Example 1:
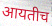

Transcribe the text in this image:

आयतीच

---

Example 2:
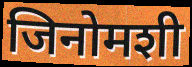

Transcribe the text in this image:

जिनोमशी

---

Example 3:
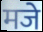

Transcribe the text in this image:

मजे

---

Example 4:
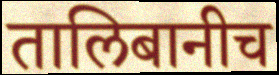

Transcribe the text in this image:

तालिबानीच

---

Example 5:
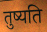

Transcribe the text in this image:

तुष्यति